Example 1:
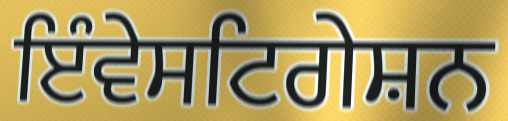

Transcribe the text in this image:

ਇੰਵੇਸਟਿਗੇਸ਼ਨ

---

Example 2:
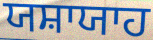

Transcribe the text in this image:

ਯਸ਼ਾਯਾਹ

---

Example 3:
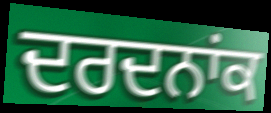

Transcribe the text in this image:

ਦਰਦਨਾਂਕ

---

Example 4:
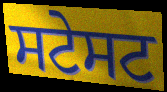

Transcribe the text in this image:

ਸਟੇਸਟ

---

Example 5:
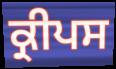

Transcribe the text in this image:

ਕ੍ਰੀਪਸ